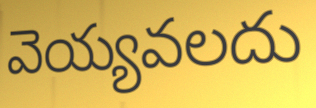
వెయ్యవలదు